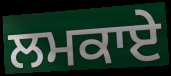
ਲਮਕਾਏ